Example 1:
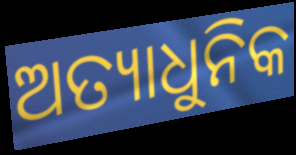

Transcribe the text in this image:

ଅତ୍ୟାଧୁନିକ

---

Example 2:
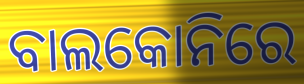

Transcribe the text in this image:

ବାଲକୋନିରେ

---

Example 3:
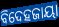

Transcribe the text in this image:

ବିଦେହଜାୟା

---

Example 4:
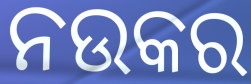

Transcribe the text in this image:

ନଉକର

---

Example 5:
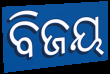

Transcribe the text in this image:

ବିଜୟ